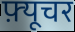
फ़्यूचर